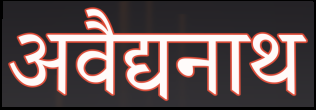
अवैद्यनाथ